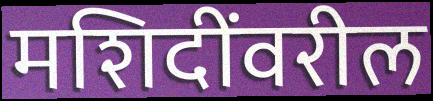
मशिदींवरील